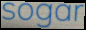
sogar